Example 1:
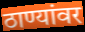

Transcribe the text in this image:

ठाण्यांवर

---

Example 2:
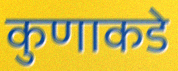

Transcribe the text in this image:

कुणाकडे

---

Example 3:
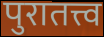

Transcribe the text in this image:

पुरातत्त्व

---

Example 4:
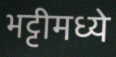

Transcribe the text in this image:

भट्टीमध्ये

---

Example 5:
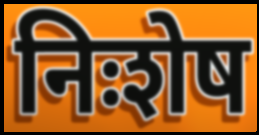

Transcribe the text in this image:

निःशेष